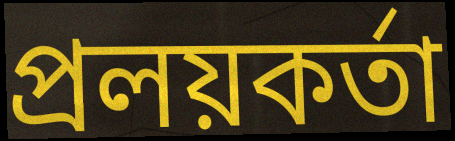
প্রলয়কর্তা